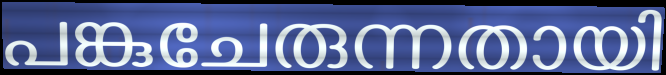
പങ്കുചേരുന്നതായി